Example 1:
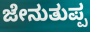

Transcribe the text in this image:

ಜೇನುತುಪ್ಪ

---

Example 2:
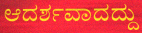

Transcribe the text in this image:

ಆದರ್ಶವಾದದ್ದು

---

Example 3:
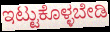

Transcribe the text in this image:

ಇಟ್ಟುಕೊಳ್ಳಬೇಡಿ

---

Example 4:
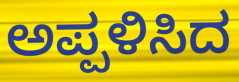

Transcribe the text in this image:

ಅಪ್ಪಳಿಸಿದ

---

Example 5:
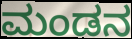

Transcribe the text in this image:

ಮಂಡನ